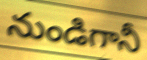
నుండిగానీ